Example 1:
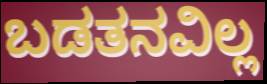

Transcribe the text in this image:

ಬಡತನವಿಲ್ಲ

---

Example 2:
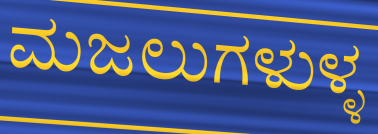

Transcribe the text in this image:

ಮಜಲುಗಳುಳ್ಳ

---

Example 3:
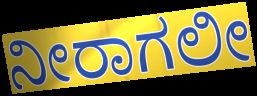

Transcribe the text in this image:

ನೀರಾಗಲೀ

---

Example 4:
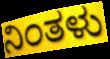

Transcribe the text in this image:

ನಿಂತಳು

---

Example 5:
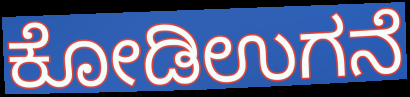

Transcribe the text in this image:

ಕೋಡಿಉಗನೆ